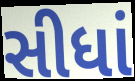
સીધાં